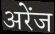
अरेंज